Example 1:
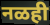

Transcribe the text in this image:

नळही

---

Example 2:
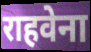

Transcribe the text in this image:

राहवेना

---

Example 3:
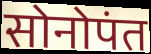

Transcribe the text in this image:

सोनोपंत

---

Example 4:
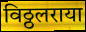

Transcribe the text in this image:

विठ्ठलराया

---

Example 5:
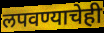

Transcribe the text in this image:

लपवण्याचेही